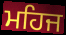
ਮਹਿਜ